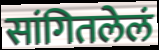
सांगितलेलं